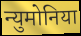
न्युमोनिया